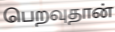
பெறவுதான்